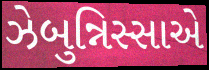
ઝેબુન્નિસ્સાએ